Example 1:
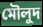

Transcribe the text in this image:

মৌলুদ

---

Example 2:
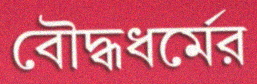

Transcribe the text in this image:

বৌদ্ধধর্মের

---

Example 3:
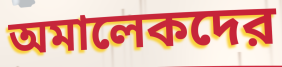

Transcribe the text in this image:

অমালেকদের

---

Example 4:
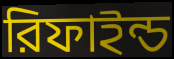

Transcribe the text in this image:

রিফাইন্ড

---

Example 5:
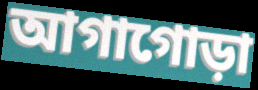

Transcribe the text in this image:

আগাগোড়া